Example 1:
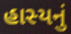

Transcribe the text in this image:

હાસ્યનું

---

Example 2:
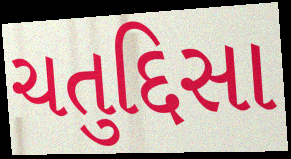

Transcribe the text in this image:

ચતુદ્દિસા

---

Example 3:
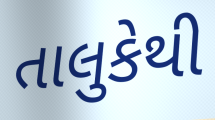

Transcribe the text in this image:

તાલુકેથી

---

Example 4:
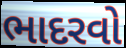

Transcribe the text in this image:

ભાદરવો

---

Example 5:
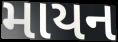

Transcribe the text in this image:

માયન